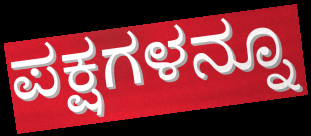
ಪಕ್ಷಗಳನ್ನೂ